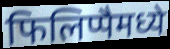
फिलिप्पैमध्ये